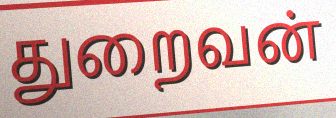
துறைவன்